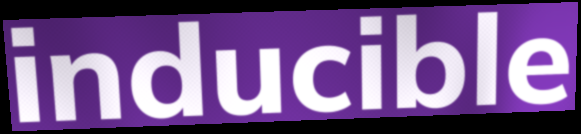
inducible